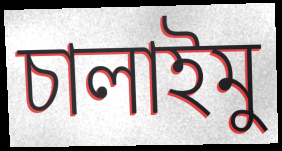
চালাইমু